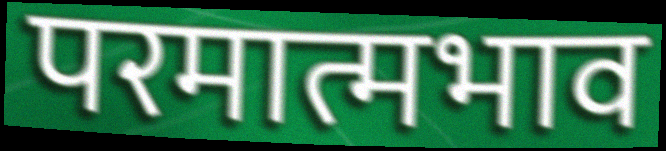
परमात्मभाव